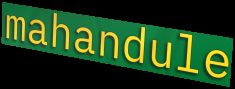
mahandule